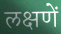
लक्षणें